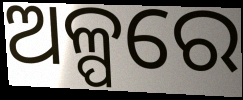
ଅଳ୍ପରେ